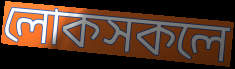
লোকসকলে